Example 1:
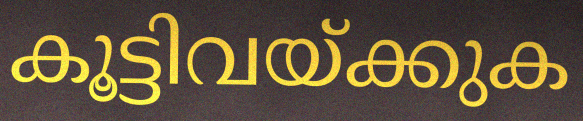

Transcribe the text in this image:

കൂട്ടിവയ്ക്കുക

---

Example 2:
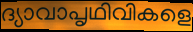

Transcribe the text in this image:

ദ്യാവാപൃഥിവികളെ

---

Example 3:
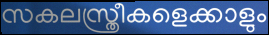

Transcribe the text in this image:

സകലസ്ത്രീകളെക്കാളും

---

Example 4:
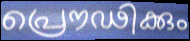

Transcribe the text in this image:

പ്രൌഢിക്കും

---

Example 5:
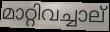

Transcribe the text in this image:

മാറ്റിവച്ചാല്